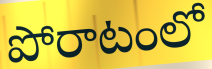
పోరాటంలో